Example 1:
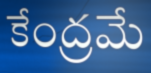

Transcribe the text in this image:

కేంద్రమే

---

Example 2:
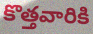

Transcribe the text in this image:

కొత్తవారికి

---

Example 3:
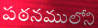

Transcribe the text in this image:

పఠనములోని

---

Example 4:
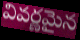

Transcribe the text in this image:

వివర్ణమైన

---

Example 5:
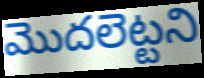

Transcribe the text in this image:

మొదలెట్టని